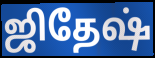
ஜிதேஷ்